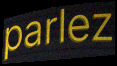
parlez